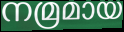
നമ്രമായ